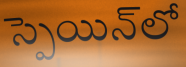
స్పెయిన్‌లో